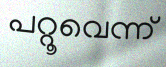
പറ്റൂവെന്ന്